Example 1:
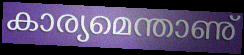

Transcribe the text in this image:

കാര്യമെന്താണു്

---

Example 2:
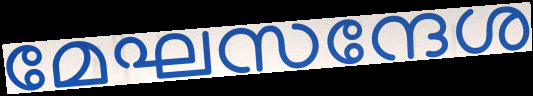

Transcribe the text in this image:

മേഘസന്ദേശ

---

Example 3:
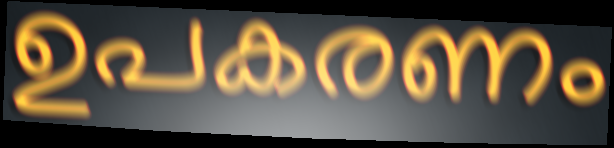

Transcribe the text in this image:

ഉപകരണം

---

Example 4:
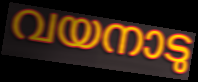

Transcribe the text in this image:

വയനാടു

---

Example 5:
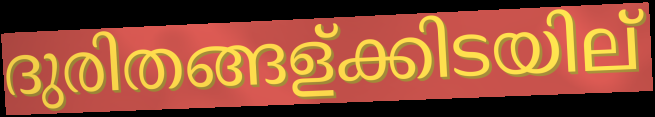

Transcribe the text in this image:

ദുരിതങ്ങള്ക്കിടയില്